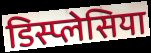
डिस्प्लेसिया